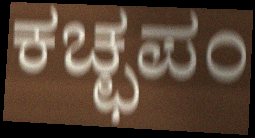
ಕಚ್ಛಪಂ